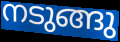
നടുങ്ങു